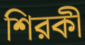
শিরকী